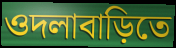
ওদলাবাড়িতে